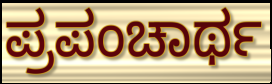
ಪ್ರಪಂಚಾರ್ಥ